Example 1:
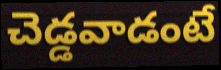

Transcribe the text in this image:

చెడ్డవాడంటే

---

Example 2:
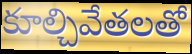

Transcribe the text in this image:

కూల్చివేతలతో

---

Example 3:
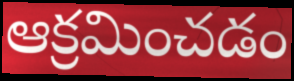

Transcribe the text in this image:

ఆక్రమించడం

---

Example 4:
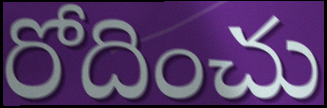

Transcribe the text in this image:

రోదించు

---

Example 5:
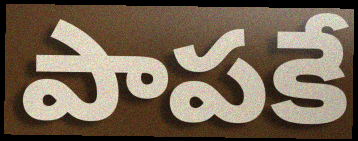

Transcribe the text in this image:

పాపకే